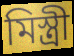
মিস্ত্ৰী